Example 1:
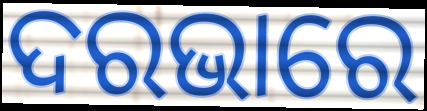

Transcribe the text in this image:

ଦରଭାରେ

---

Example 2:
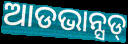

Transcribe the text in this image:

ଆଡଭାନ୍ସଡ୍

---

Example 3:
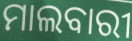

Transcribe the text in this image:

ମାଲବାରୀ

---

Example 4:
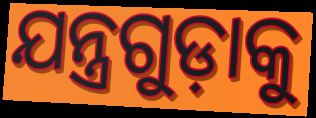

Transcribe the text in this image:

ଯନ୍ତ୍ରଗୁଡ଼ାକୁ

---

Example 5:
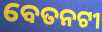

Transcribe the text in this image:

ବେତନଟୀ